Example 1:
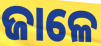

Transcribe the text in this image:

ଜାଳେ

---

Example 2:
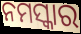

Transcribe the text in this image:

ନମସ୍କାର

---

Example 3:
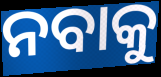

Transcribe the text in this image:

ନବାକୁ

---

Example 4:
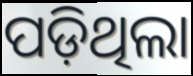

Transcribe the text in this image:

ପଡ଼ିଥିଲା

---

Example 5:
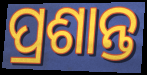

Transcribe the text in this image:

ପ୍ରଶାନ୍ତ